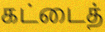
கட்டைத்